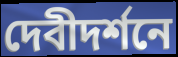
দেবীদর্শনে